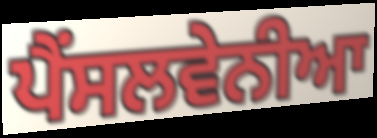
ਪੈਂਸਲਵੇਨੀਆ